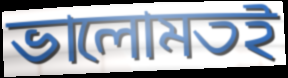
ভালোমতই